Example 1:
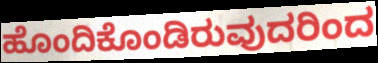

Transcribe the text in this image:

ಹೊಂದಿಕೊಂಡಿರುವುದರಿಂದ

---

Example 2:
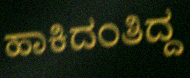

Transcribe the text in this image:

ಹಾಕಿದಂತಿದ್ದ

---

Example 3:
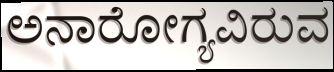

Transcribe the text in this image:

ಅನಾರೋಗ್ಯವಿರುವ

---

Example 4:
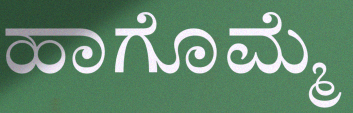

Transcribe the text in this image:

ಹಾಗೊಮ್ಮೆ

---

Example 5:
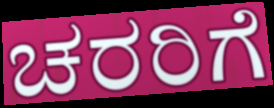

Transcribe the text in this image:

ಚರರಿಗೆ